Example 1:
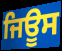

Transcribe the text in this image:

ਜਿਊਸ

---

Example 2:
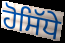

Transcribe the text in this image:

ਹੋਸਿੱਧੇ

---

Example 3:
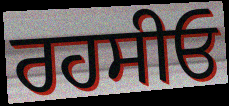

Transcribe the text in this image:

ਰਹਸੀਓ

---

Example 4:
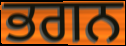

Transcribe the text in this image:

ਭਗਨ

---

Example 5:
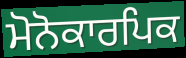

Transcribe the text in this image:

ਮੋਨੋਕਾਰਪਿਕ